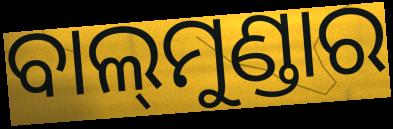
ବାଲ୍‍ମୁଣ୍ଡାର